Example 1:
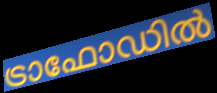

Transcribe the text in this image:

ട്രാഫോഡിൽ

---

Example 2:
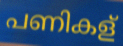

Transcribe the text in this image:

പണികള്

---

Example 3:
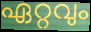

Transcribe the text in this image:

ഏറ്റവും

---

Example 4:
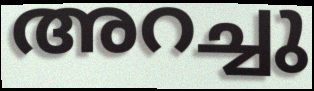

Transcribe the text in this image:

അറച്ചു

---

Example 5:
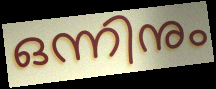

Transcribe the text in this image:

ഒന്നിനും